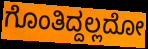
ಗೊಂತಿದ್ದಲ್ಲದೋ